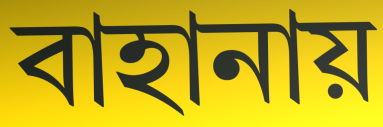
বাহানায়